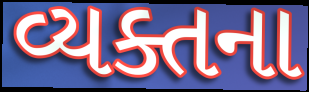
વ્યક્તના